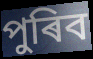
পুৰিব